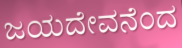
ಜಯದೇವನೆಂದ